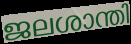
ജലശാന്തി